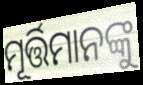
ମୂର୍ତ୍ତିମାନଙ୍କୁ